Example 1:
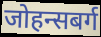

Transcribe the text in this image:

जोहन्सबर्ग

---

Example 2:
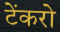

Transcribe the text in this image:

टेंकरो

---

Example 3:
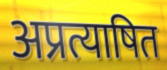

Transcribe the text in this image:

अप्रत्याषित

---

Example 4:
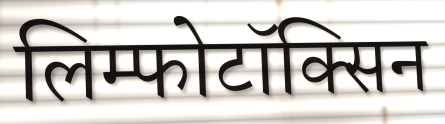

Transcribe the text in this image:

लिम्फोटॉक्सिन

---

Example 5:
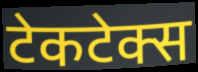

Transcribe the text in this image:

टेकटेक्स